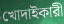
খোদাইকারী